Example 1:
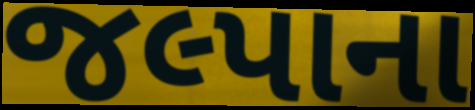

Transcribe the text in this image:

જલ્પાના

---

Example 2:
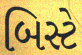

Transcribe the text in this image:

બિસ્ટે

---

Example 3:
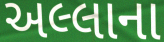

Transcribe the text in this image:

અલ્લાના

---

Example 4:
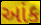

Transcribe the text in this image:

આંક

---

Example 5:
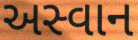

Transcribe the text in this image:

અસ્વાન